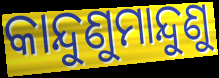
କାନ୍ଦୁଣୁମାନ୍ଦୁଣୁ